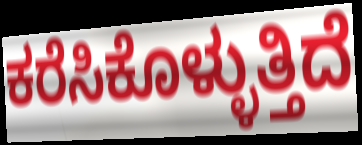
ಕರೆಸಿಕೊಳ್ಳುತ್ತಿದೆ